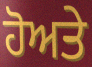
ਹੋਅਤੇ